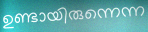
ഉണ്ടായിരുന്നെന്ന